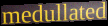
medullated